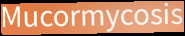
Mucormycosis